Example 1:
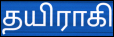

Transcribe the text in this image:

தயிராகி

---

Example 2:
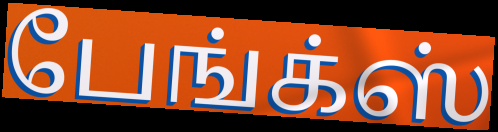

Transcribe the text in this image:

பேங்க்ஸ்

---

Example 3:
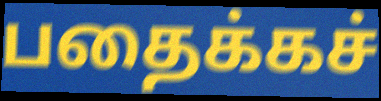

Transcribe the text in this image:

பதைக்கச்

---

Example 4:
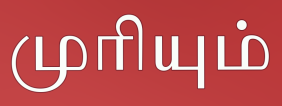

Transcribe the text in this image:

முரியும்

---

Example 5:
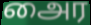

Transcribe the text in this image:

அைர